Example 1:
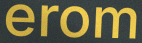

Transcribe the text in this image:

erom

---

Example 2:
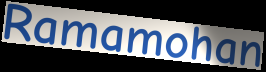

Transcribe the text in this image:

Ramamohan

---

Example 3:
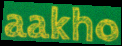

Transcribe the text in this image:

aakho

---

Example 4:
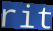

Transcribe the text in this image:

rit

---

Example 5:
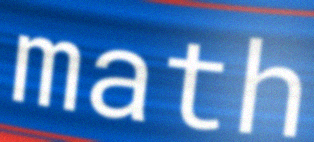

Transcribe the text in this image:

math